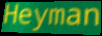
Heyman